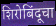
शिरोबिंदूचा